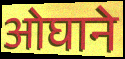
ओघाने